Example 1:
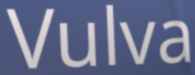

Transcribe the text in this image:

Vulva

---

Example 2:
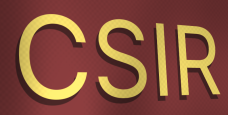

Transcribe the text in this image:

CSIR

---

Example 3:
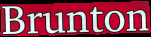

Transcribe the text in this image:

Brunton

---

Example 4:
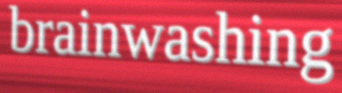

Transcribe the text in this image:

brainwashing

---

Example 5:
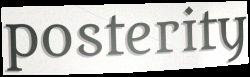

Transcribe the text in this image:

posterity